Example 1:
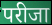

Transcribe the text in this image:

परीजा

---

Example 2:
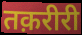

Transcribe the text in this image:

तक़रीरी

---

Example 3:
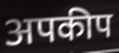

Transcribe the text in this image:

अपकीप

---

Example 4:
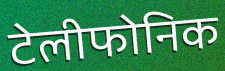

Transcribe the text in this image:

टेलीफोनिक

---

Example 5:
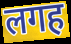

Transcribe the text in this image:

लगह